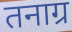
तनाग्र